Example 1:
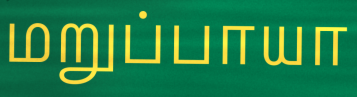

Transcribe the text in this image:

மறுப்பாயா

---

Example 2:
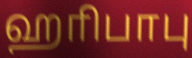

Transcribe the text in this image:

ஹரிபாபு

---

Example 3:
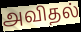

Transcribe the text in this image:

அவிதல்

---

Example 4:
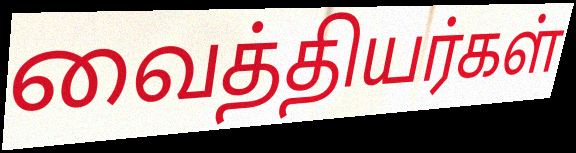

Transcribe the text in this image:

வைத்தியர்கள்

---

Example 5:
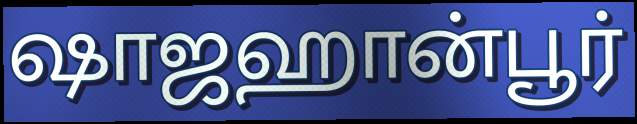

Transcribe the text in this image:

ஷாஜஹான்பூர்